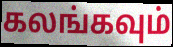
கலங்கவும்